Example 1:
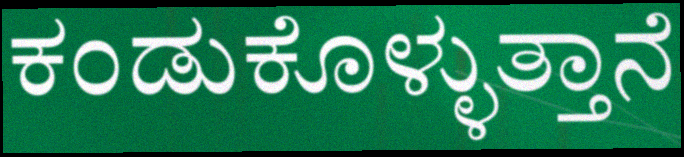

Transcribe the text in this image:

ಕಂಡುಕೊಳ್ಳುತ್ತಾನೆ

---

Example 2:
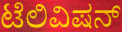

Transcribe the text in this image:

ಟೆಲಿವಿಷನ್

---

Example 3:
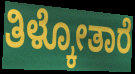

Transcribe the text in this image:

ತಿಳ್ಕೋತಾರೆ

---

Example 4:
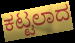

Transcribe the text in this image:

ಕಟ್ಟಲಾದ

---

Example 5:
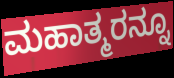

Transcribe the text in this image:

ಮಹಾತ್ಮರನ್ನೂ